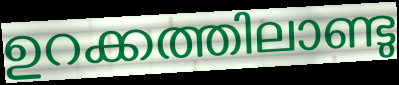
ഉറക്കത്തിലാണ്ടു